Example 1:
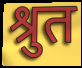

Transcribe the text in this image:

श्रुत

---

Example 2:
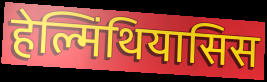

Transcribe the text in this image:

हेल्मिंथियासिस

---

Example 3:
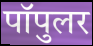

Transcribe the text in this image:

पॉपुलर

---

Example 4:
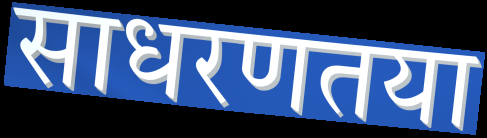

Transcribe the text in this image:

साधरणतया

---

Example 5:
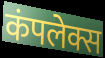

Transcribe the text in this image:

कंपलेक्स